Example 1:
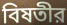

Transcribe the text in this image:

বিষতীর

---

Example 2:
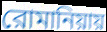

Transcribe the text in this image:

রোমানিয়ায়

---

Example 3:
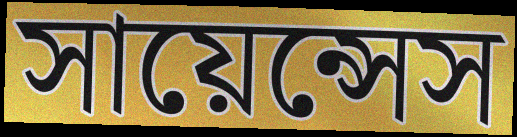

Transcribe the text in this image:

সায়েন্সেস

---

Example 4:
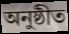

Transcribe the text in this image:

অনুষ্ঠীত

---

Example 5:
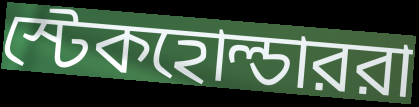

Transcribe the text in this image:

স্টেকহোল্ডাররা